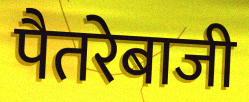
पैतरेबाजी